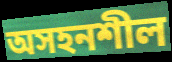
অসহনশীল